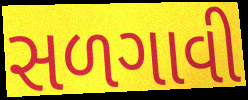
સળગાવી